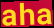
aha